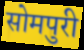
सोमपुरी